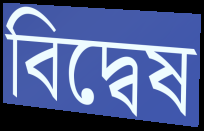
বিদ্বেষ